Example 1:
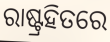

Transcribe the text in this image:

ରାଷ୍ଟ୍ରହିତରେ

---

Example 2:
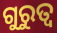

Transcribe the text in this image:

ଗୁରୁତ୍ବ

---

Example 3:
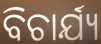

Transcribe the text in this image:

ବିଚାର୍ଯ୍ୟ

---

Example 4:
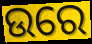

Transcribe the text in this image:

ଉରେ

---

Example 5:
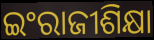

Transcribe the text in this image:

ଇଂରାଜୀଶିକ୍ଷା